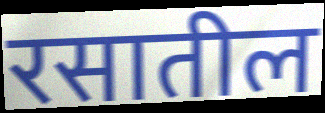
रसातील